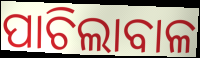
ପାଚିଲାବାଳ